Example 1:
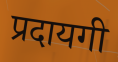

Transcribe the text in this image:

प्रदायगी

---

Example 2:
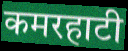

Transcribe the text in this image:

कमरहाटी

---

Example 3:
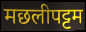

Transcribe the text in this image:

मछलीपट्टम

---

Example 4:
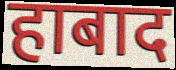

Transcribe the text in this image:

हाबाद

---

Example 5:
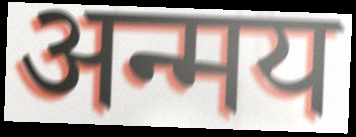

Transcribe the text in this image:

अन्मय